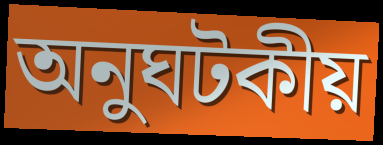
অনুঘটকীয়